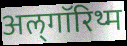
अल्गॉरिथ्म